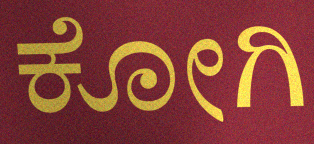
ಕೋಗಿ